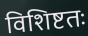
विशिष्टतः